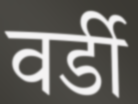
वर्डी